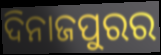
ଦିନାଜପୁରର